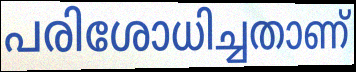
പരിശോധിച്ചതാണ്